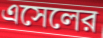
এসেলের